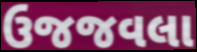
ઉજજવલા